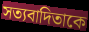
সত্যবাদিতাকে